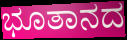
ಭೂತಾನದ